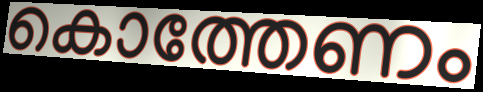
കൊത്തേണം